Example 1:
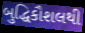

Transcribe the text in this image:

બુદ્ધિકૌશલથી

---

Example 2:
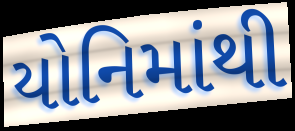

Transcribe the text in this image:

યોનિમાંથી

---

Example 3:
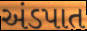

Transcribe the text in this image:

અંડપાત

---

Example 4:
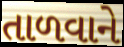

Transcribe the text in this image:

તાળવાને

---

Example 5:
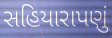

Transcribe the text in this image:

સહિયારાપણું